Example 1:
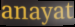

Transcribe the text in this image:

anayat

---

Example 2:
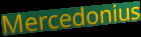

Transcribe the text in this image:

Mercedonius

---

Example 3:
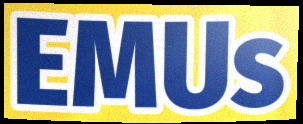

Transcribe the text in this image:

EMUs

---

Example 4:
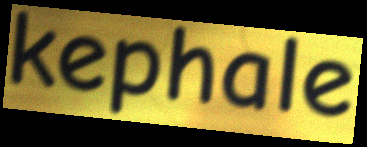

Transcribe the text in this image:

kephale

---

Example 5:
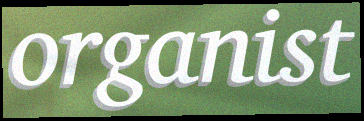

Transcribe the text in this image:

organist